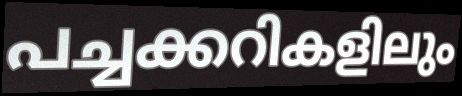
പച്ചക്കറികളിലും